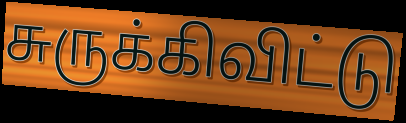
சுருக்கிவிட்டு